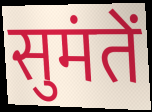
सुमंतें